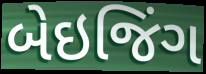
બેઇજિંગ